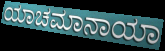
ಯಾಚಮಾನಾಯಾ